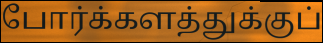
போர்க்களத்துக்குப்